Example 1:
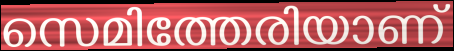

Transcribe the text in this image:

സെമിത്തേരിയാണ്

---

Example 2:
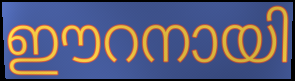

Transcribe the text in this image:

ഈറനായി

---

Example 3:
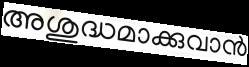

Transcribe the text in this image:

അശുദ്ധമാക്കുവാൻ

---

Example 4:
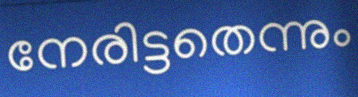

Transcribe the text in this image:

നേരിട്ടതെന്നും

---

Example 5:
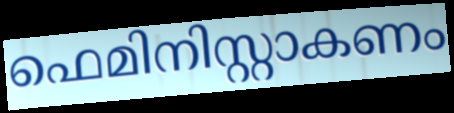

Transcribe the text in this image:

ഫെമിനിസ്റ്റാകണം